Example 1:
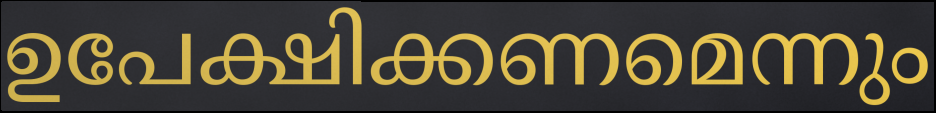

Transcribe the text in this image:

ഉപേക്ഷിക്കണമെന്നും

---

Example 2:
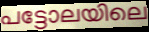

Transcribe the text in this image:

പട്ടോലയിലെ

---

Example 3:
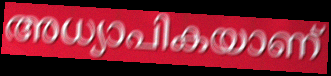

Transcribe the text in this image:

അധ്യാപികയാണ്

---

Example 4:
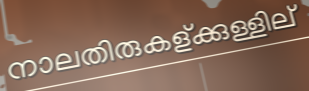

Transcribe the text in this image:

നാലതിരുകള്ക്കുള്ളില്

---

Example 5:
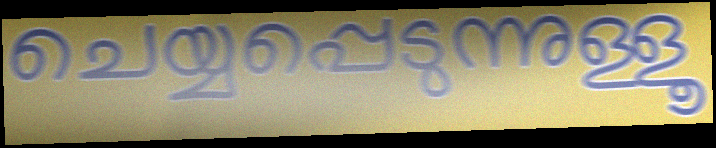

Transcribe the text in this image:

ചെയ്യപ്പെടുന്നുള്ളൂ